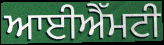
ਆਈਐੱਮਟੀ